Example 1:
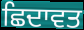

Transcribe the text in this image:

ਛਿਦਾਵਤ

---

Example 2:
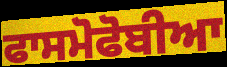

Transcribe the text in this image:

ਫਾਸਮੋਫੋਬੀਆ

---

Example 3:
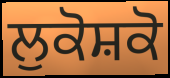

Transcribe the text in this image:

ਲੁਕੋਸ਼ਕੋ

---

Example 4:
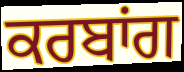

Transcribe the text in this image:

ਕਰਬਾਂਗ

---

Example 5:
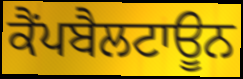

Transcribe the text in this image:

ਕੈਂਪਬੈਲਟਾਊਨ